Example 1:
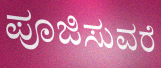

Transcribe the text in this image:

ಪೂಜಿಸುವರೆ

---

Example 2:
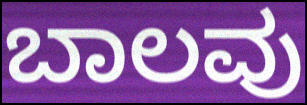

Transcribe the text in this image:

ಬಾಲವು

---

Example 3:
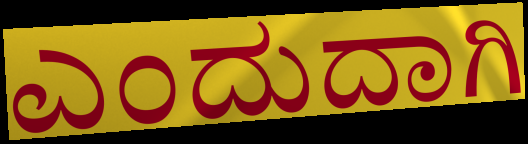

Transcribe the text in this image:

ಎಂದುದಾಗಿ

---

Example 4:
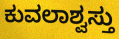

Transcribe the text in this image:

ಕುವಲಾಶ್ವಸ್ತು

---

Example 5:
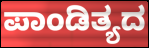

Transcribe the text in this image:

ಪಾಂಡಿತ್ಯದ